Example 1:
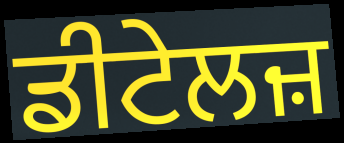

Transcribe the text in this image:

ਡੀਟੇਲਜ਼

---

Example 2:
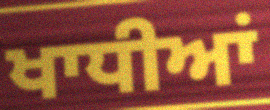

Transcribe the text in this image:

ਖਾਧੀਆਂ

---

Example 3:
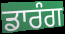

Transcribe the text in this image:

ਡਾਰੰਗ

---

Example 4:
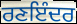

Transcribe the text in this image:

ਰਣਇੰਦਰ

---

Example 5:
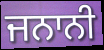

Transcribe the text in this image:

ਜਨਾਨੀ